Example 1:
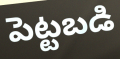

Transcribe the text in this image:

పెట్టబడి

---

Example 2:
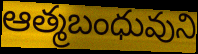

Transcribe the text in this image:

ఆత్మబంధువుని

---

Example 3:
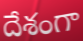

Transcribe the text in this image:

దేశంగా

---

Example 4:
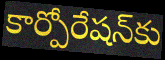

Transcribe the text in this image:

కార్పోరేషన్‌కు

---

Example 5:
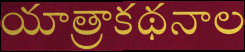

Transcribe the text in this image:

యాత్రాకథనాల